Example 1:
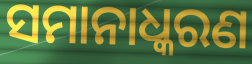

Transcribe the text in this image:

ସମାନାଧ୍କରଣ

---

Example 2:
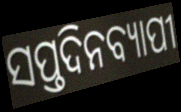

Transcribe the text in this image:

ସପ୍ତଦିନବ୍ୟାପୀ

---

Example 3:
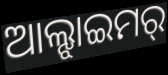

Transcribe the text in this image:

ଆଲ୍ଝାଇମର୍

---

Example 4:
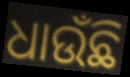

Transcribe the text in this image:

ଧାଉଁଛି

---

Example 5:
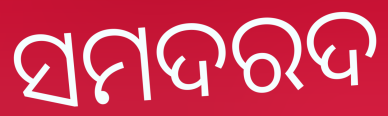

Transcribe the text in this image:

ସମଦରଦ